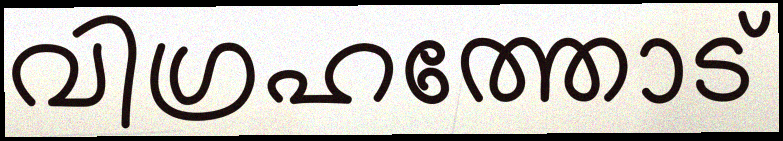
വിഗ്രഹത്തോട്